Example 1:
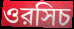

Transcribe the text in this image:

ওরসিচ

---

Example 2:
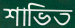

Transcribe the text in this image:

শাভিত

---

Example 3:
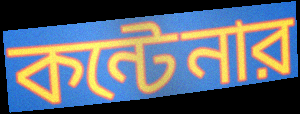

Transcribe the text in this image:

কন্টেনার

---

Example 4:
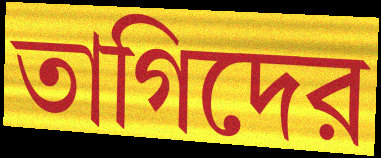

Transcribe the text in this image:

তাগিদের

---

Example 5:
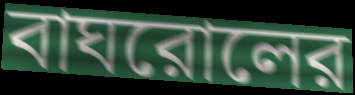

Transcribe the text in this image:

বাঘরোলের